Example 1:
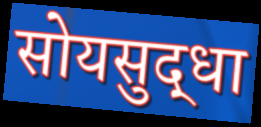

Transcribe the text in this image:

सोयसुद्धा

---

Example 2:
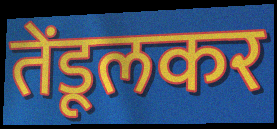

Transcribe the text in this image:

तेंडूलकर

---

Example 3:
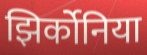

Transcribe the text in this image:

झिर्कोनिया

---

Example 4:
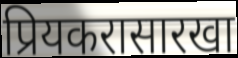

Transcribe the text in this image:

प्रियकरासारखा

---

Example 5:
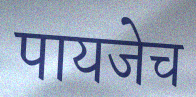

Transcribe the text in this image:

पायजेच